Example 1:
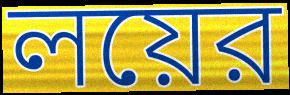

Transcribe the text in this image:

লয়ের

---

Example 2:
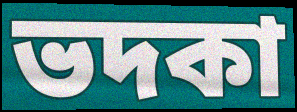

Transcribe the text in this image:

ভদকা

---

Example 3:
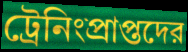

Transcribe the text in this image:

ট্রেনিংপ্রাপ্তদের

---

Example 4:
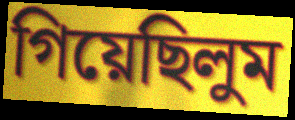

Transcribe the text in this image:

গিয়েছিলুম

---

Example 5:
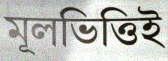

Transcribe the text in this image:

মূলভিত্তিই